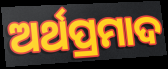
ଅର୍ଥପ୍ରମାଦ